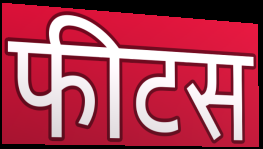
फीटस